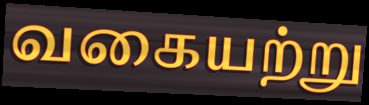
வகையற்று